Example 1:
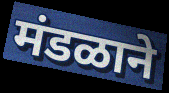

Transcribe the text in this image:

मंडळाने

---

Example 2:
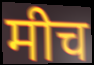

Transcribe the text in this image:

मीच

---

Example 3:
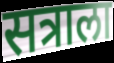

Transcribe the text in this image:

सत्राला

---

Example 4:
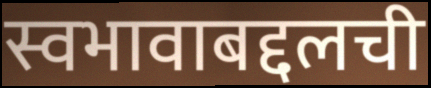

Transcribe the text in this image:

स्वभावाबद्दलची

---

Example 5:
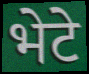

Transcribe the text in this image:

भेटे